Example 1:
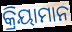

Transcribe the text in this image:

କ୍ରିୟାମାନ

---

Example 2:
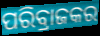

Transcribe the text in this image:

ପରିବ୍ରାଜକର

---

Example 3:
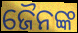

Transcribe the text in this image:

ଜୈନଙ୍କ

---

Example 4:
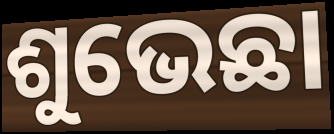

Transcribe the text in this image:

ଶୁଭେଛା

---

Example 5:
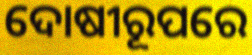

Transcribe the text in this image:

ଦୋଷୀରୂପରେ